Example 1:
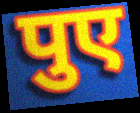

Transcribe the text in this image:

पुए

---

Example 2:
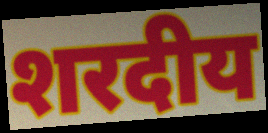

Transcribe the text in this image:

शरदीय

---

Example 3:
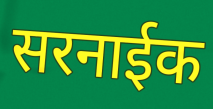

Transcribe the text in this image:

सरनाईक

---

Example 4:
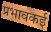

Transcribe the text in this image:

प्रभावकई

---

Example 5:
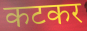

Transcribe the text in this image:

कटकर